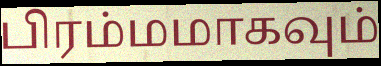
பிரம்மமாகவும்